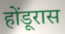
होंडूरास